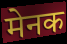
मेनक